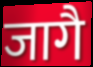
जागै